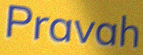
Pravah